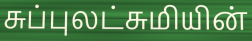
சுப்புலட்சுமியின்